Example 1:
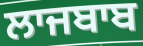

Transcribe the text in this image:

ਲਾਜਬਾਬ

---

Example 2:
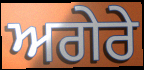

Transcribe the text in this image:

ਅਗੇਰੇ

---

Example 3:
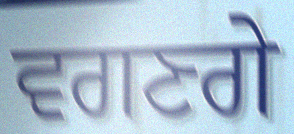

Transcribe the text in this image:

ਵਗਣਗੇ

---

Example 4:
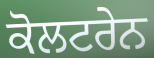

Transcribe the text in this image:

ਕੋਲਟਰੇਨ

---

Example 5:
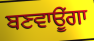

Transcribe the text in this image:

ਬਣਵਾਊਂਗਾ